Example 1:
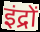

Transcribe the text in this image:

इंद्रों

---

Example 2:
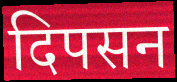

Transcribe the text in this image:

दिपसन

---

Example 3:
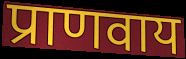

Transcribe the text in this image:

प्राणवाय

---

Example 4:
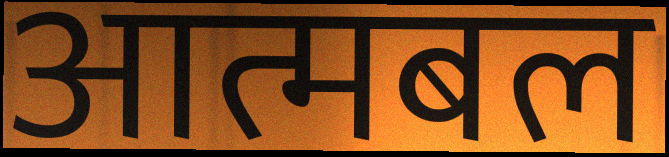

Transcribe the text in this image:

आत्मबल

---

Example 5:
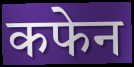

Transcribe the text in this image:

कफेन